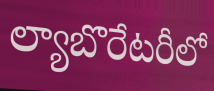
ల్యాబొరేటరీలో